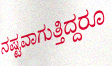
ನಷ್ಟವಾಗುತ್ತಿದ್ದರೂ